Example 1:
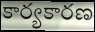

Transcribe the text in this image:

కార్యకారణ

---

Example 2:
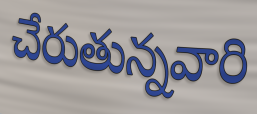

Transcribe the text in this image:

చేరుతున్నవారి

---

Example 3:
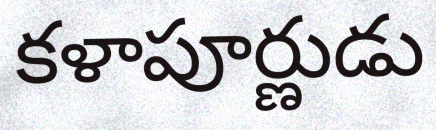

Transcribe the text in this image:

కళాపూర్ణుడు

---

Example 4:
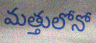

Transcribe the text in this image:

మత్తులోనో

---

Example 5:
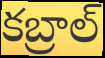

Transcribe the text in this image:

కబ్రాల్